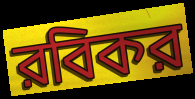
রবিকর